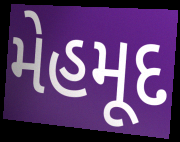
મેહમૂદ